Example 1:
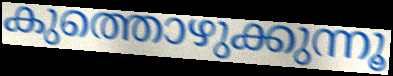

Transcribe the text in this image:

കുത്തൊഴുക്കുന്നൂ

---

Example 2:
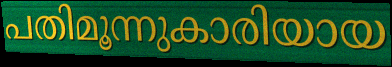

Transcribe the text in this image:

പതിമൂന്നുകാരിയായ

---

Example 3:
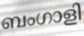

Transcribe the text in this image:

ബംഗാളി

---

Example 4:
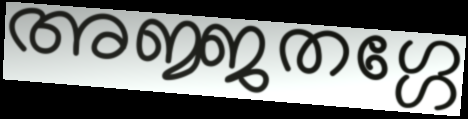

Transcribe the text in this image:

അജ്ജതഗ്ഗേ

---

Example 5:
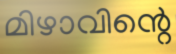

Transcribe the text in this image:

മിഴാവിന്റെ